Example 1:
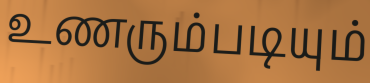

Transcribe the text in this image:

உணரும்படியும்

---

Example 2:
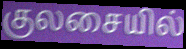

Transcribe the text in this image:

குலசையில்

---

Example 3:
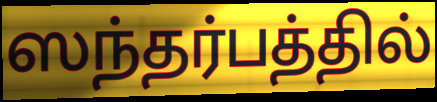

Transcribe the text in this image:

ஸந்தர்பத்தில்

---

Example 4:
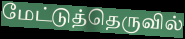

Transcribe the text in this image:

மேட்டுத்தெருவில்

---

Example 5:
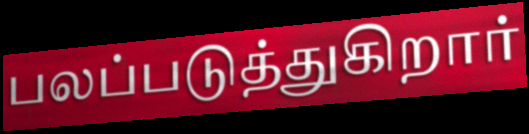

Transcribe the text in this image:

பலப்படுத்துகிறார்